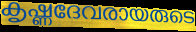
കൃഷ്ണദേവരായരുടെ